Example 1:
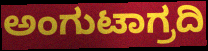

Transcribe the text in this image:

ಅಂಗುಟಾಗ್ರದಿ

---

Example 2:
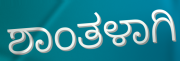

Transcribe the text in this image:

ಶಾಂತಳಾಗಿ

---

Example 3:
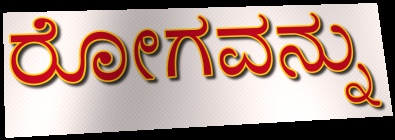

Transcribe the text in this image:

ರೋಗವನ್ನು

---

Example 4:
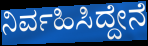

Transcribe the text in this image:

ನಿರ್ವಹಿಸಿದ್ದೇನೆ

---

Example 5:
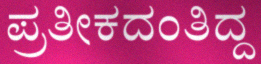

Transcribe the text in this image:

ಪ್ರತೀಕದಂತಿದ್ದ